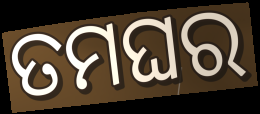
ତମଘର